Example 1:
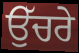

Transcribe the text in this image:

ਉੱਚਰੇ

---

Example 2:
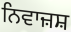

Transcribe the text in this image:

ਨਿਵਾਜ਼ਸ਼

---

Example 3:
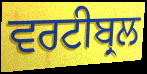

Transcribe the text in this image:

ਵਰਟੀਬ੍ਰਲ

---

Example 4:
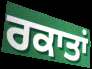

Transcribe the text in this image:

ਰਕਾਤਾਂ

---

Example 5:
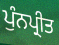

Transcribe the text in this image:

ਪੁੰਨਪ੍ਰੀਤ